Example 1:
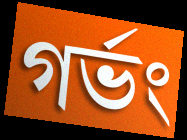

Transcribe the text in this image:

গর্ভং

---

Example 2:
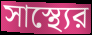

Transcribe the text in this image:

সাস্থ্যের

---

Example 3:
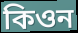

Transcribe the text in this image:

কিওন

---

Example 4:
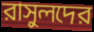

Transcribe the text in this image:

রাসুলদের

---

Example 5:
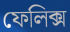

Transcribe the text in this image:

ফেলিক্স